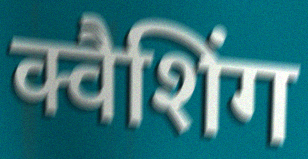
क्वैशिंग